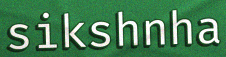
sikshnha